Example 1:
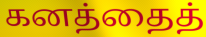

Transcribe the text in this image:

கனத்தைத்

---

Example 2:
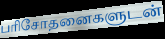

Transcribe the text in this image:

பரிசோதனைகளுடன்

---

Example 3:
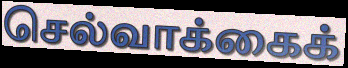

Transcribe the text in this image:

செல்வாக்கைக்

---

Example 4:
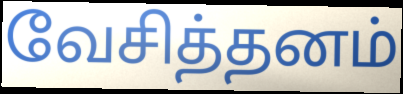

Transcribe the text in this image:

வேசித்தனம்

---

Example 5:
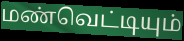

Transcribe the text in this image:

மண்வெட்டியும்